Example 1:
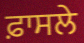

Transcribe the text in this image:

ਫ਼ਾਸਲੇ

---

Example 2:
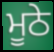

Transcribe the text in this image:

ਮੂਠੇ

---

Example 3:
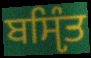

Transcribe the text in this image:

ਬਸੵਿੰਤ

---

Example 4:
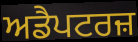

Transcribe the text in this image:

ਅਡੈਪਟਰਜ਼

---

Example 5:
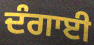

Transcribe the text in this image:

ਦੰਗਾਈ